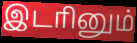
இடரினும்